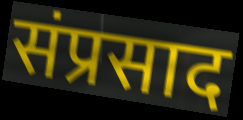
संप्रसाद